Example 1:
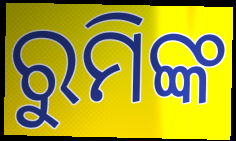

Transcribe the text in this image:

ରୁମିଙ୍କ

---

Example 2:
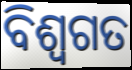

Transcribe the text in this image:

ବିଶ୍ଵଗତ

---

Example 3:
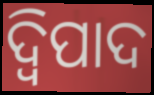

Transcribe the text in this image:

ଦ୍ୱିପାଦ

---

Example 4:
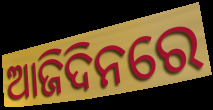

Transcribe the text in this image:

ଆଜିଦିନରେ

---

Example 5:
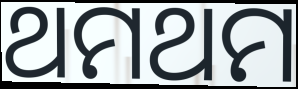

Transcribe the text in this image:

ଥମଥମ